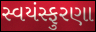
સ્વયંસ્ફુરણા